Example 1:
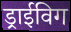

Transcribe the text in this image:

ड्राईविग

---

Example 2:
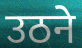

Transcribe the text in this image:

उठने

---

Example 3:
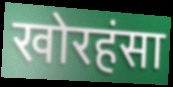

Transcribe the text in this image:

खोरहंसा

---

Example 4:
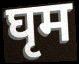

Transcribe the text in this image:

घृम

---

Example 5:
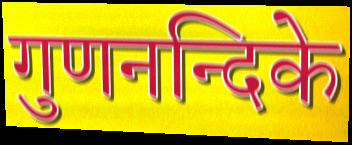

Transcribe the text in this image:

गुणनन्दिके